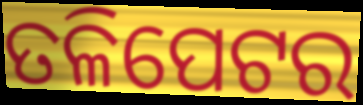
ତଳିପେଟର